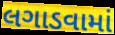
લગાડવામાં